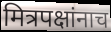
मित्रपक्षांनाच